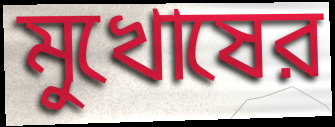
মুখোষের